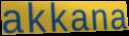
akkana